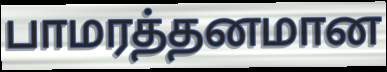
பாமரத்தனமான